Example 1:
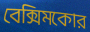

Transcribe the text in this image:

বেক্সিমকোর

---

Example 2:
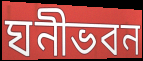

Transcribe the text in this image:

ঘনীভবন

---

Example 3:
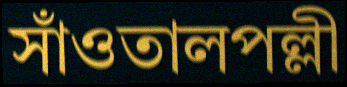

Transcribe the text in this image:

সাঁওতালপল্লী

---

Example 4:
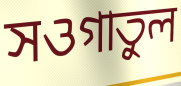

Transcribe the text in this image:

সওগাতুল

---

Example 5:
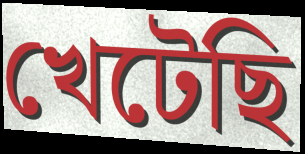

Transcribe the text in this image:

খেটেছি